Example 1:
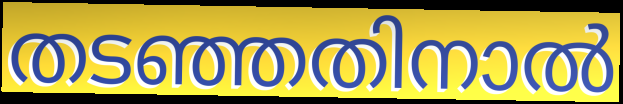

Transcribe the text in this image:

തടഞ്ഞതിനാൽ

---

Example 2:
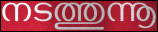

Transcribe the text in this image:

നടത്തുന്നൂ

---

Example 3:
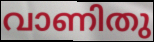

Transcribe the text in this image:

വാണിതു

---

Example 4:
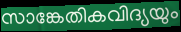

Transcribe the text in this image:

സാങ്കേതികവിദ്യയും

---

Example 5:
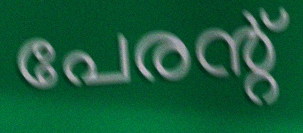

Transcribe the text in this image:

പേരന്റ്